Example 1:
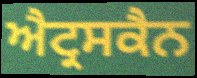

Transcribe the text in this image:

ਐਟ੍ਰਸਕੈਨ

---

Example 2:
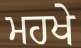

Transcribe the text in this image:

ਮਹਖੇ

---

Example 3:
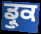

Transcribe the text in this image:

ਡ੍ਰੁਕ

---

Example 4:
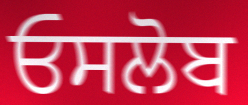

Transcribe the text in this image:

ਓਸਲੋਬ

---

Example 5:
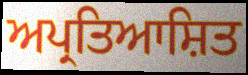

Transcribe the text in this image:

ਅਪ੍ਰਤਿਆਸ਼ਿਤ